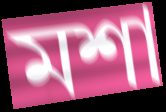
মশা